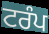
ਟਰੰਪ